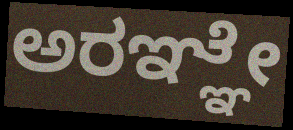
ಅರಞ್ಞೇ